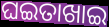
ଘଇତାଖାଇ